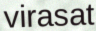
virasat